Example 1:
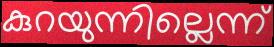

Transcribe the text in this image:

കുറയുന്നില്ലെന്ന്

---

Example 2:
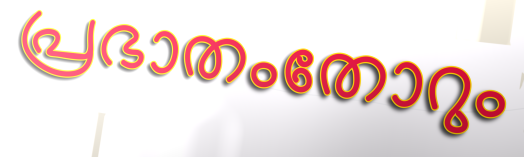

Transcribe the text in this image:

പ്രഭാതംതോറും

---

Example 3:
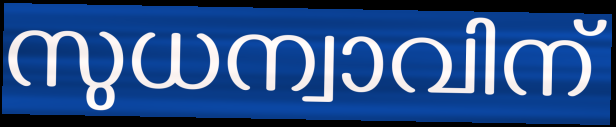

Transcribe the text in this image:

സുധന്വാവിന്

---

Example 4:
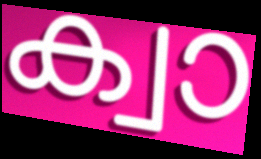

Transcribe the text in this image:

ക്വാ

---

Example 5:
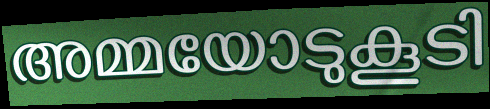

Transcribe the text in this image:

അമ്മയോടുകൂടി